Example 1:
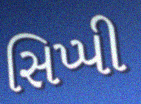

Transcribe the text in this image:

સિપ્પી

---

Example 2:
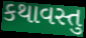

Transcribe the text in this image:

કથાવસ્તુ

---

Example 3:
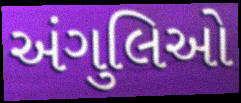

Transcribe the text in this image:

અંગુલિઓ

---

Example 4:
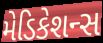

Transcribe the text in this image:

મેડિકેશન્સ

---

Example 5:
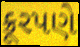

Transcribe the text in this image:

ક્રૂરપણે